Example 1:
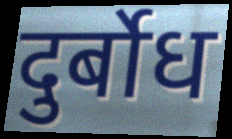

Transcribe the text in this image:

दुर्बोध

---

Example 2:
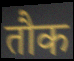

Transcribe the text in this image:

तौक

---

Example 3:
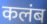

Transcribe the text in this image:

कलंब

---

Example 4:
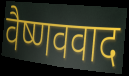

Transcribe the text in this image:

वैष्णववाद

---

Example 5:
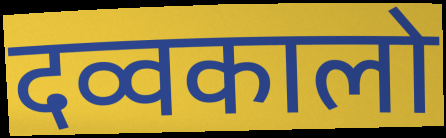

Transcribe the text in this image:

दव्वकालो